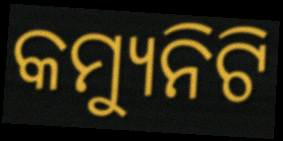
କମ୍ୟୁନିଟି